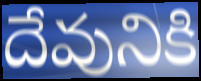
దేవునికి